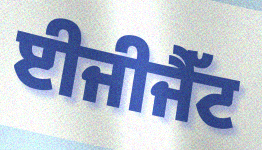
ਈਜੀਜੈੱਟ